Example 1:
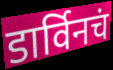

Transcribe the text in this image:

डार्विनचं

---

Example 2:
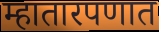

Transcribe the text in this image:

म्हातारपणात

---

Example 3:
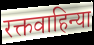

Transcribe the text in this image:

रक्तवाहिन्या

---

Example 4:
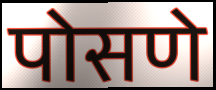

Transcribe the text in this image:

पोसणे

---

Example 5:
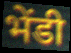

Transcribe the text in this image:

भेंडी